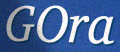
GOra